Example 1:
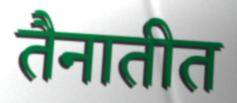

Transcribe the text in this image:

तैनातीत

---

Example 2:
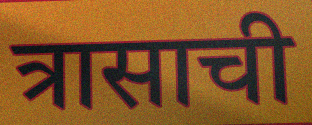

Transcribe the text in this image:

त्रासाची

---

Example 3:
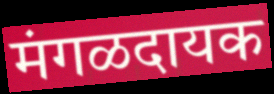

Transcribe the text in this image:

मंगळदायक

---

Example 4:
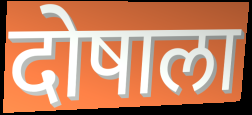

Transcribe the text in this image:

दोषाला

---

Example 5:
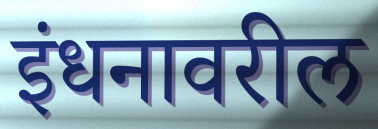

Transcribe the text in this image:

इंधनावरील